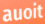
auoit